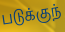
படுக்குந்